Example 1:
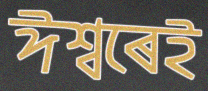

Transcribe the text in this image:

ঈশ্বৰেই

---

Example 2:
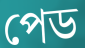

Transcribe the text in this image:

পেড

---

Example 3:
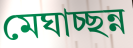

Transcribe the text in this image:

মেঘাচ্ছন্ন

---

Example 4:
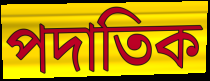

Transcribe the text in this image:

পদাতিক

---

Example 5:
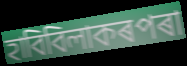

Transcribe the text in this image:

হাবিবিলাকৰপৰা